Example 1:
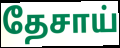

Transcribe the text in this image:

தேசாய்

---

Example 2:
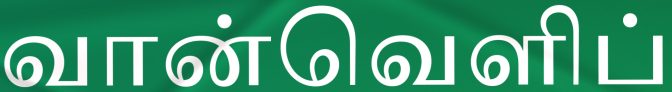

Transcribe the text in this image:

வான்வெளிப்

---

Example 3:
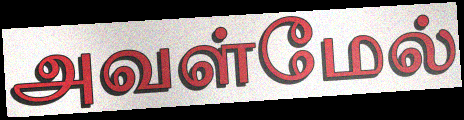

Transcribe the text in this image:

அவள்மேல்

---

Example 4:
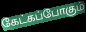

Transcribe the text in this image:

கேட்கப்போகும்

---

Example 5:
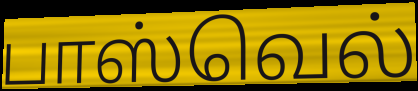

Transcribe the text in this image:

பாஸ்வெல்